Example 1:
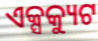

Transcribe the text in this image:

ଏକ୍ସକ୍ୟୁଟ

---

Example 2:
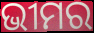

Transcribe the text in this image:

ଭୀମର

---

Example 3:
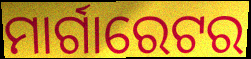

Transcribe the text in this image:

ମାର୍ଗାରେଟର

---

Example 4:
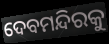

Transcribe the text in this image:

ଦେବମନ୍ଦିରକୁ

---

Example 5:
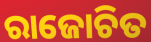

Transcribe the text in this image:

ରାଜୋଚିତ